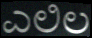
ಎಲಿಲ